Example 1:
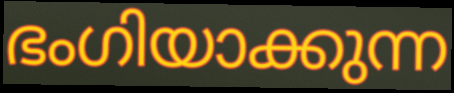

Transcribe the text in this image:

ഭംഗിയാക്കുന്ന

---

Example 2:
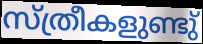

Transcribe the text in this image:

സ്ത്രീകളുണ്ടു്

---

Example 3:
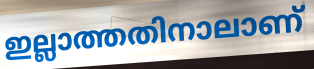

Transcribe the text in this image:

ഇല്ലാത്തതിനാലാണ്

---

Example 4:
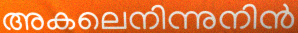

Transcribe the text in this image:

അകലെനിന്നുനിൻ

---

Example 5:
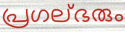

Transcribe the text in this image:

പ്രഗല്ഭരും